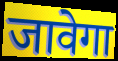
जावेगा